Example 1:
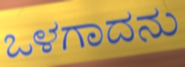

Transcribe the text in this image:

ಒಳಗಾದನು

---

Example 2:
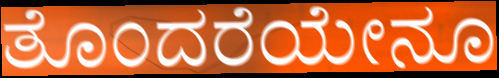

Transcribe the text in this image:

ತೊಂದರೆಯೇನೂ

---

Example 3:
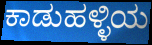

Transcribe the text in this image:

ಕಾಡುಹಳ್ಳಿಯ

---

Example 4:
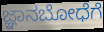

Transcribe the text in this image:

ಜ್ಞಾನಬೋಧೆಗೆ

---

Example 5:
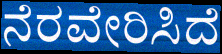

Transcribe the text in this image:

ನೆರವೇರಿಸಿದೆ